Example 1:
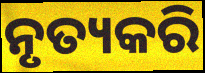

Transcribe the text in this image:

ନୃତ୍ୟକରି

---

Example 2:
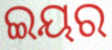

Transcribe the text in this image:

ଇୟର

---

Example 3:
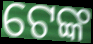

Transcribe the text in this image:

ଟେଙ୍କ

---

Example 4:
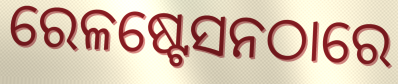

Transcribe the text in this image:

ରେଳଷ୍ଟେସନଠାରେ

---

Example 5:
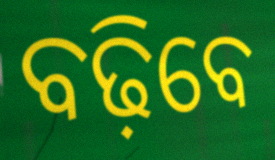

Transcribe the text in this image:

ବଢ଼ିବେ